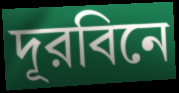
দূরবিনে